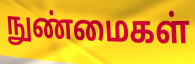
நுண்மைகள்